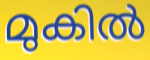
മുകിൽ